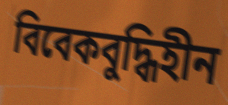
বিবেকবুদ্ধিহীন